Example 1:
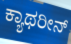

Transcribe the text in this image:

ಕ್ಯಾಥರೀನ್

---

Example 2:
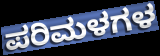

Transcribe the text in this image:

ಪರಿಮಳಗಳ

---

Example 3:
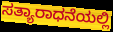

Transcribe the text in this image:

ಸತ್ಯಾರಾಧನೆಯಲ್ಲಿ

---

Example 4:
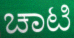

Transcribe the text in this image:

ಚಾಟಿ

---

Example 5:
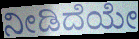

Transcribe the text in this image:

ನೀಡಿದೆಯೇ